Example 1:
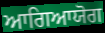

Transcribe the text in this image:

ਆਗਿਆਯੋਗ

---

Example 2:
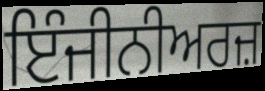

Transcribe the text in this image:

ਇੰਜੀਨੀਅਰਜ਼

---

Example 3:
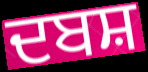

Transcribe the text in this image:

ਦਬਸ਼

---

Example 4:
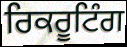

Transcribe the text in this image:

ਰਿਕਰੂਟਿੰਗ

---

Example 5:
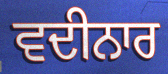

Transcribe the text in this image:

ਵਦੀਨਾਰ